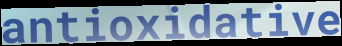
antioxidative